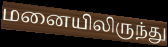
மனையிலிருந்து